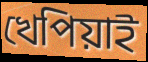
খেপিয়াই